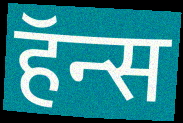
हॅन्स